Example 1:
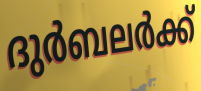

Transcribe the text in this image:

ദുർബലർക്ക്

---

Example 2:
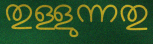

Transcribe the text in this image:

തുള്ളുന്നതു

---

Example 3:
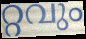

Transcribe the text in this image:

റ്റവും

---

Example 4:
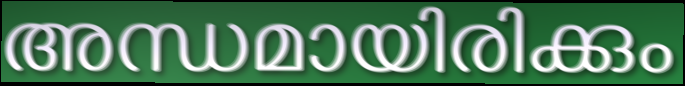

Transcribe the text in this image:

അന്ധമായിരിക്കും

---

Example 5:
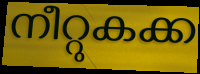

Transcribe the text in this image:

നീറ്റുകക്ക